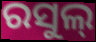
ରସୁଲ୍